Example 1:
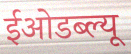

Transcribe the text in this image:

ईओडब्ल्यू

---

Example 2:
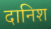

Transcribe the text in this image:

दानिश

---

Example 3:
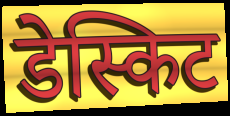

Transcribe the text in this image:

डेस्किट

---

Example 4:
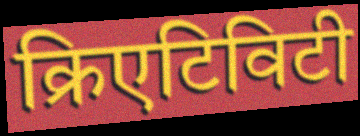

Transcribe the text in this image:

क्रिएटिविटी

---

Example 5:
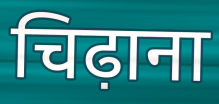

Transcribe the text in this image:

चिढ़ाना